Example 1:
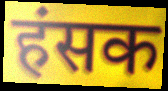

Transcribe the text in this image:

हंसक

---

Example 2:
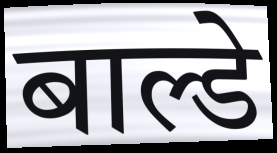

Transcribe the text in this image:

बाल्डे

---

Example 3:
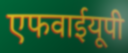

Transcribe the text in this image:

एफवाईयूपी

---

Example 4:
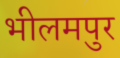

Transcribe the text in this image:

भीलमपुर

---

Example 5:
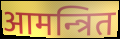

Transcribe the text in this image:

आमन्त्रित